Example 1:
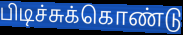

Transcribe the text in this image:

பிடிச்சுக்கொண்டு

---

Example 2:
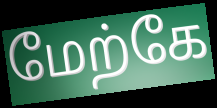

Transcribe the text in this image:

மேற்கே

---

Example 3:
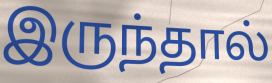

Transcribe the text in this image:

இருந்தால்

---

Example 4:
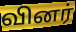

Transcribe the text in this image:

வினர்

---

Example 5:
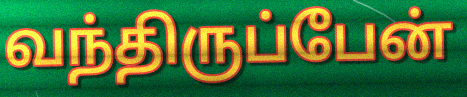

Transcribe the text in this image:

வந்திருப்பேன்